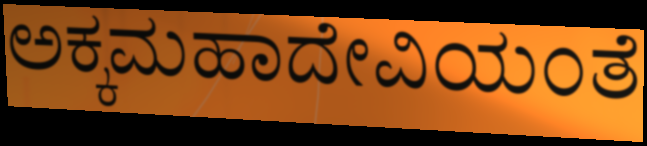
ಅಕ್ಕಮಹಾದೇವಿಯಂತೆ